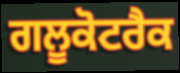
ਗਲੂਕੋਟਰੈਕ